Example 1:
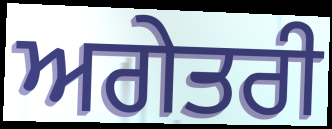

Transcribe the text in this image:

ਅਗੇਤਰੀ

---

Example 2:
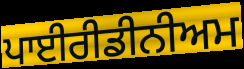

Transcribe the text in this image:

ਪਾਈਰੀਡੀਨੀਅਮ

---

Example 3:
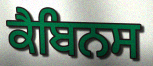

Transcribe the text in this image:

ਕੈਬਿਨਸ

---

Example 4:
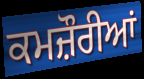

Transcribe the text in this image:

ਕਮਜ਼ੌਰੀਆਂ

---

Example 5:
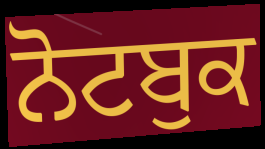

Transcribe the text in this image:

ਨੋਟਬੁਕ